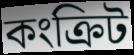
কংক্ৰিট